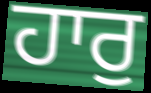
ਹਾਰੁ